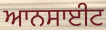
ਆਨਸਾਈਟ